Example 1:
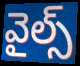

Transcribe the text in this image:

వైల్స్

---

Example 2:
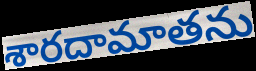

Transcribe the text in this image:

శారదామాతను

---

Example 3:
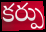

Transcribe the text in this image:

కర్పు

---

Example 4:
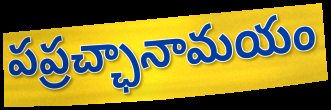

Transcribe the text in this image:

పప్రచ్ఛానామయం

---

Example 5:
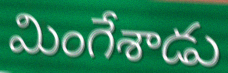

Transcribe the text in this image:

మింగేశాడు